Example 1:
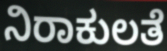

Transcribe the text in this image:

ನಿರಾಕುಲತೆ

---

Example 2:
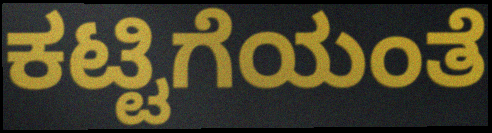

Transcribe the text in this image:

ಕಟ್ಟಿಗೆಯಂತೆ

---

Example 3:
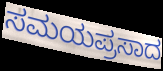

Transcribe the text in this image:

ಸಮಯಪ್ರಸಾದ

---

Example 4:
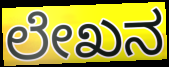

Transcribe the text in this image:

ಲೇಖನ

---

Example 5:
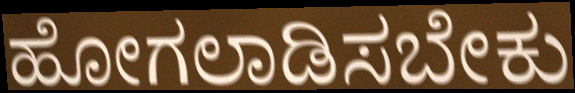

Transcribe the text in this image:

ಹೋಗಲಾಡಿಸಬೇಕು